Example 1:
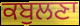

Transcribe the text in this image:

ਕਬੁਲਣਾ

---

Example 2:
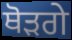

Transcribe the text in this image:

ਥੋੜਗੇ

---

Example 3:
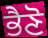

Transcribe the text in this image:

ਭੈਣੋ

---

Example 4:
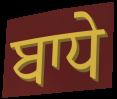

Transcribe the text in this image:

ਬਾਧੇ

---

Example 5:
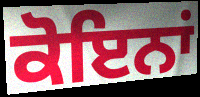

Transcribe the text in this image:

ਕੋਇਨਾਂ